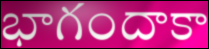
భాగందాకా